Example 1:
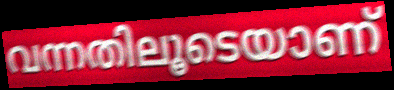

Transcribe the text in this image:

വന്നതിലൂടെയാണ്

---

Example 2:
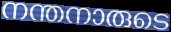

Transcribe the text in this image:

നന്തനാരുടെ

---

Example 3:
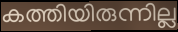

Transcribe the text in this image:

കത്തിയിരുന്നില്ല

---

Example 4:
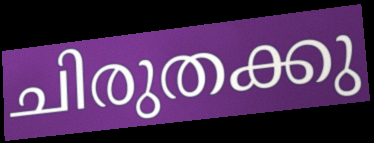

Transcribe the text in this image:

ചിരുതക്കു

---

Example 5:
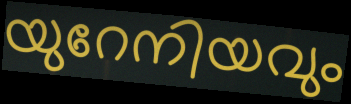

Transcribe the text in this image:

യുറേനിയവും